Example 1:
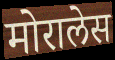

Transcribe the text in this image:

मोरालेस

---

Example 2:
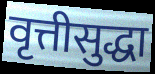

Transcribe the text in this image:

वृत्तीसुद्धा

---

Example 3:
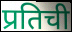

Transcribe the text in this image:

प्रतिची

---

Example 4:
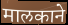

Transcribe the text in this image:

मालकाने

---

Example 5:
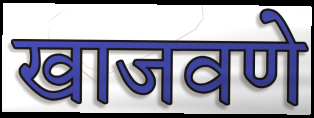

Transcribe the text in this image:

खाजवणे